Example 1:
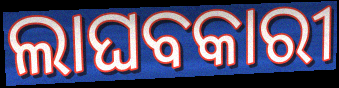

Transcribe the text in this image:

ଲାଘବକାରୀ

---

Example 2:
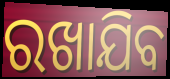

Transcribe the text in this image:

ରଖାଯିବ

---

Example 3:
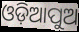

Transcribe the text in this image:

ଓଡ଼ିଆପୁଅ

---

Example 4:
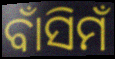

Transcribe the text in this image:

ବାଁସିମଁ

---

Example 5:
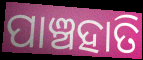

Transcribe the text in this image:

ପାଞ୍ଚହାତି